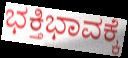
ಭಕ್ತಿಭಾವಕ್ಕೆ